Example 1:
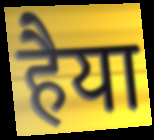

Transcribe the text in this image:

हैया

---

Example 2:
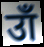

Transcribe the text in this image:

उाँ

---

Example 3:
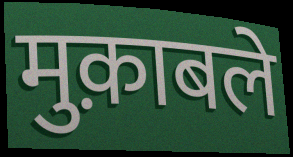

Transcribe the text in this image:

मुक़ाबले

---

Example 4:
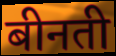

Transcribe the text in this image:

बीनती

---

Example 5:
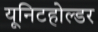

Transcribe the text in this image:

यूनिटहोल्डर